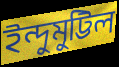
ইন্দুমুট্টিল